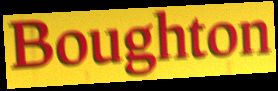
Boughton